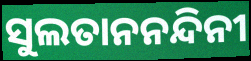
ସୁଲତାନନନ୍ଦିନୀ